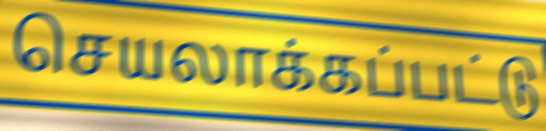
செயலாக்கப்பட்டு